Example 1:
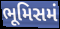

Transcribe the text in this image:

ભૂમિસમં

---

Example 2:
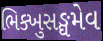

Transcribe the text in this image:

ભિક્ખુસઙ્ઘમેવ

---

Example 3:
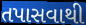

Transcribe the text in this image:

તપાસવાથી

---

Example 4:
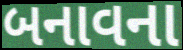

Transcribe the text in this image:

બનાવના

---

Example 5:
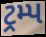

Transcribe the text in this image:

ટ્રમ્પ